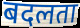
बदलता